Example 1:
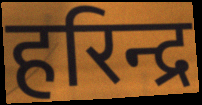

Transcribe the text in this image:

हरिन्द्र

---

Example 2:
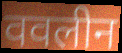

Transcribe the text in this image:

ववलीन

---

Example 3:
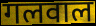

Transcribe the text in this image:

गलवाल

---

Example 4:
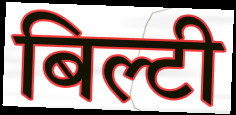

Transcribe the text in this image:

बिल्टी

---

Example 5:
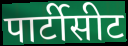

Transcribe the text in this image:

पार्टीसीट